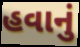
હવાનું